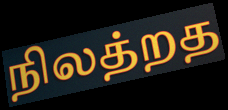
நிலத்றத